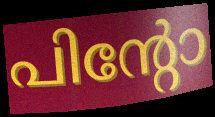
പിന്റോ